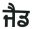
ਜੈਡ